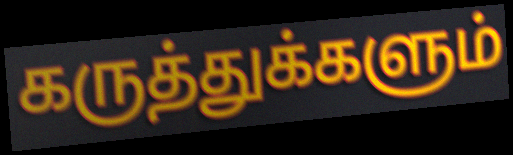
கருத்துக்களும்